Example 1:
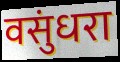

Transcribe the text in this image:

वसुंधरा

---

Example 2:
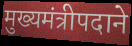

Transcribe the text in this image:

मुख्यमंत्रीपदाने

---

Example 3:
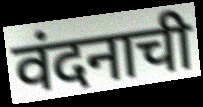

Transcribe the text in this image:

वंदनाची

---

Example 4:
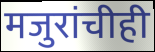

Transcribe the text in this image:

मजुरांचीही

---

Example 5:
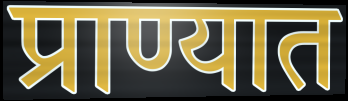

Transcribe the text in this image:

प्राण्यात